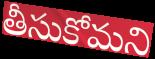
తీసుకోమని